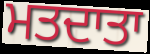
ਮਤਦਾਤਾ